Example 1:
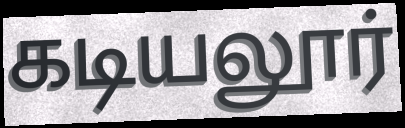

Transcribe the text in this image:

கடியலூர்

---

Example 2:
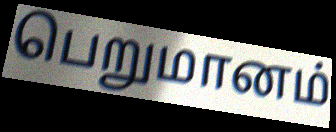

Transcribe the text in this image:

பெறுமானம்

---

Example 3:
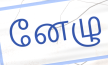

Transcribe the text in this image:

னேழு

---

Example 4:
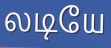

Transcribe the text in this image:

லடியே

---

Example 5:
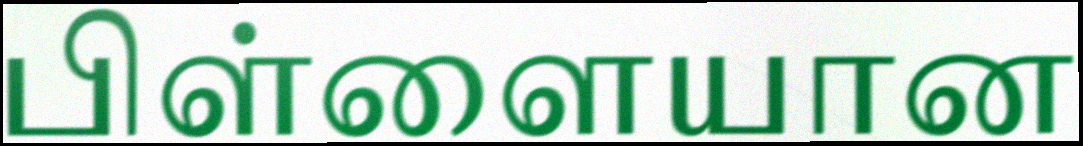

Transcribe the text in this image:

பிள்ளையான